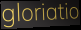
gloriatio